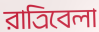
রাত্রিবেলা